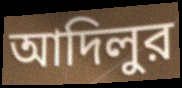
আদিলুর